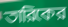
তারিকের